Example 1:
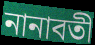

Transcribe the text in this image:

নানাবতী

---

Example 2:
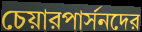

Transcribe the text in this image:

চেয়ারপার্সনদের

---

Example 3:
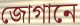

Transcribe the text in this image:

জোগানে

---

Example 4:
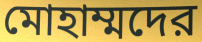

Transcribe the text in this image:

মোহাম্মদের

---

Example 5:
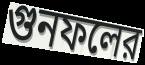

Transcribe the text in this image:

গুনফলের